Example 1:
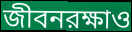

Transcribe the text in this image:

জীবনরক্ষাও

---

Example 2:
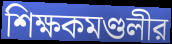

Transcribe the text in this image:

শিক্ষকমণ্ডলীর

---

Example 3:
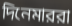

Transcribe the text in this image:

দিনেমাররা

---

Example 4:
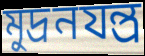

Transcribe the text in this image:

মুদ্রনযন্ত্র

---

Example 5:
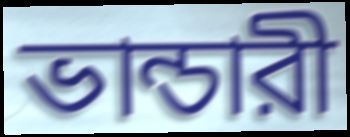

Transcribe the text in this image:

ভান্ডারী